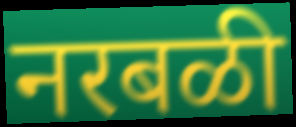
नरबळी